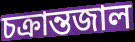
চক্রান্তজাল